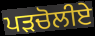
ਪੜਚੋਲੀਏ